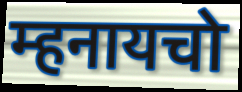
म्हनायचो